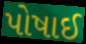
પોષાઈ